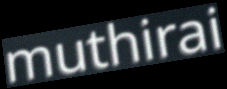
muthirai